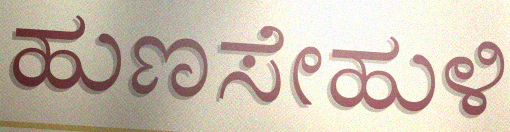
ಹುಣಸೇಹುಳಿ